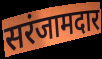
सरंजामदार